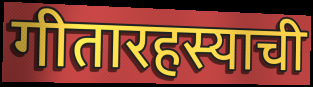
गीतारहस्याची